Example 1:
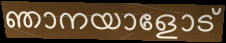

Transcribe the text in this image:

ഞാനയാളോട്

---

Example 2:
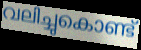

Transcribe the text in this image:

വലിച്ചുകൊണ്ട്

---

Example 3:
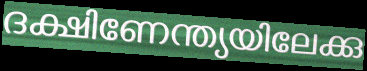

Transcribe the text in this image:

ദക്ഷിണേന്ത്യയിലേക്കു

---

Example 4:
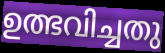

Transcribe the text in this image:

ഉത്ഭവിച്ചതു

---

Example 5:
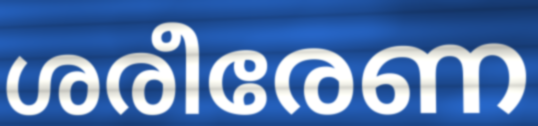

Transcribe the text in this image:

ശരീരേണ